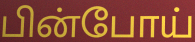
பின்போய்